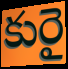
కురై